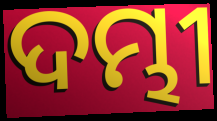
ଦମ୍ଭୀ